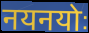
नयनयोः